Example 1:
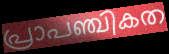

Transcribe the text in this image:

പ്രാപഞ്ചികത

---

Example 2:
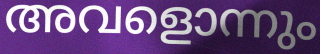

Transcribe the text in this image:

അവളൊന്നും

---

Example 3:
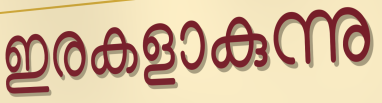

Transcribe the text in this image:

ഇരകളാകുന്നു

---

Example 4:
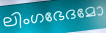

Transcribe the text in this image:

ലിംഗഭേദമോ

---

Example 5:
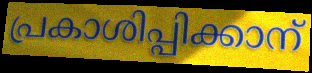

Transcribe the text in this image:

പ്രകാശിപ്പിക്കാന്